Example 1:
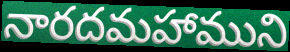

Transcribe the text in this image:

నారదమహాముని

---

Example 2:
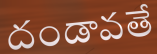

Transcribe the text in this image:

దండావతే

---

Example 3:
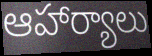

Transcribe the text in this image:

ఆహార్యాలు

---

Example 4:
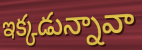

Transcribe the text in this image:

ఇక్కడున్నావా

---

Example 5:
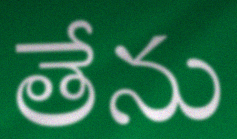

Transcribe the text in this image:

తేను